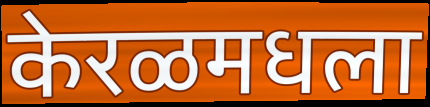
केरळमधला